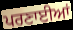
ਪਰਣਾਈਆਂ